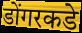
डोंगरकडे